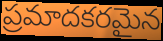
ప్రమాదకరమైన